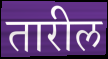
तारील